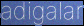
adigalar